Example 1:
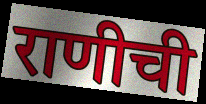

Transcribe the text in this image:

राणीची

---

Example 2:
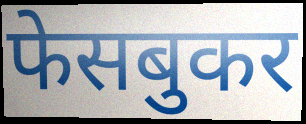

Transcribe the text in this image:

फेसबुकर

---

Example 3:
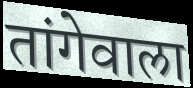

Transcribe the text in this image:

तांगेवाला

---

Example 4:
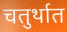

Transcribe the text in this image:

चतुर्थात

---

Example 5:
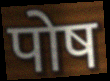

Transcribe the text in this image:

पोष